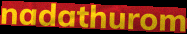
nadathurom